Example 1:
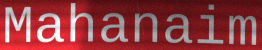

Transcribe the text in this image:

Mahanaim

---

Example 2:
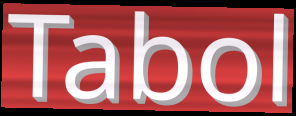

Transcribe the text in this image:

Tabol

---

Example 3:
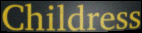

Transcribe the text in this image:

Childress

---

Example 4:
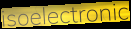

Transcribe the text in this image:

isoelectronic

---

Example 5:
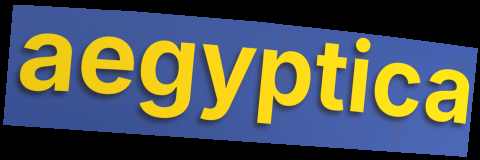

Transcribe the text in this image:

aegyptica